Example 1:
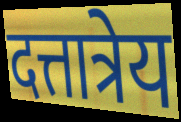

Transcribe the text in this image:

दत्तात्रेय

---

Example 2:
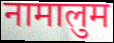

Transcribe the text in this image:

नामालुम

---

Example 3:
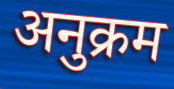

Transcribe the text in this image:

अनुक्रम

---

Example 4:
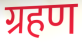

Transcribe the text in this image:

ग्रहण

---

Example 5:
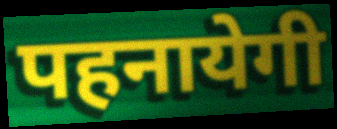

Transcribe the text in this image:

पहनायेगी